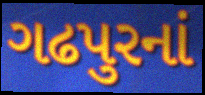
ગઢપુરનાં